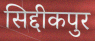
सिद्दीकपुर